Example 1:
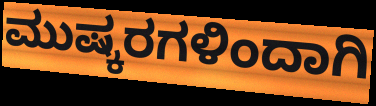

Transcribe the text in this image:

ಮುಷ್ಕರಗಳಿಂದಾಗಿ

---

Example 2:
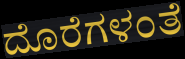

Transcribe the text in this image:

ದೊರೆಗಳಂತೆ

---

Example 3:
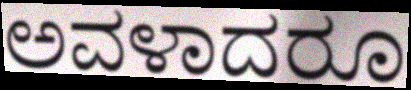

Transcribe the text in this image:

ಅವಳಾದರೂ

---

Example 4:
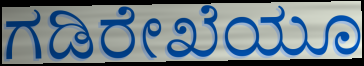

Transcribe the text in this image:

ಗಡಿರೇಖೆಯೂ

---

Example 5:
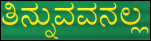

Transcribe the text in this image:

ತಿನ್ನುವವನಲ್ಲ